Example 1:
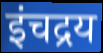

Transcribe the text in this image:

इंचद्रय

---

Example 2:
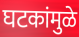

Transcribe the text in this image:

घटकांमुळे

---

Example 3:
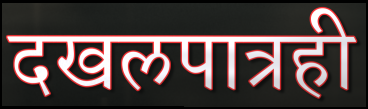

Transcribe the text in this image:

दखलपात्रही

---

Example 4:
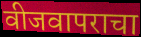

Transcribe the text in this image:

वीजवापराचा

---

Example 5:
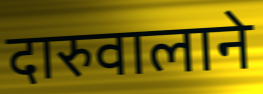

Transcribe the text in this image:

दारुवालाने